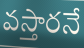
వస్తారనే